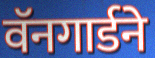
वॅनगार्डने